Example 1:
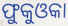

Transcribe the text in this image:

ଫୁକୁଓକା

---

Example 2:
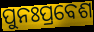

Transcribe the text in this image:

ପୁନଃପ୍ରବେଶ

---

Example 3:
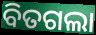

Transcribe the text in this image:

ବିତଗଲା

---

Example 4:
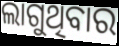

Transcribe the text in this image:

ଲାଗୁଥିବାର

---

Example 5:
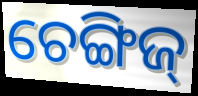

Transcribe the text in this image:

ଚେଙ୍ଗିଜ୍